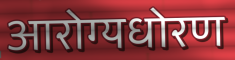
आरोग्यधोरण